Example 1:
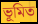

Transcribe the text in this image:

ভূমিত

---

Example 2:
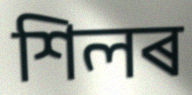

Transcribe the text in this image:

শিলৰ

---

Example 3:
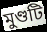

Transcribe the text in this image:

মুণ্ডটি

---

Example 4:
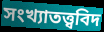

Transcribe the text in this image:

সংখ্যাতত্ত্ববিদ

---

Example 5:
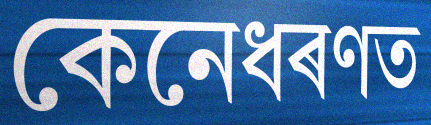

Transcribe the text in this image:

কেনেধৰণত